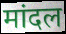
मांदल